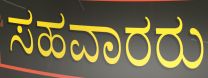
ಸಹವಾರರು